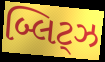
બ્લિટ્ઝ